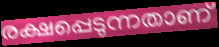
രക്ഷപ്പെടുന്നതാണ്